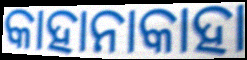
କାହାନାକାହା